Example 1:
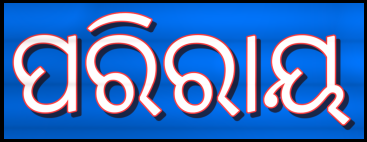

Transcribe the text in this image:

ପରିରାୟ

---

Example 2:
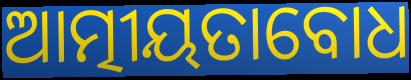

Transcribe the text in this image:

ଆତ୍ମୀୟତାବୋଧ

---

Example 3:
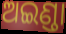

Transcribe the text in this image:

ଅଇଣ୍ଡା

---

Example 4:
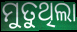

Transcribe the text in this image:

ମୁତୁଥିଲା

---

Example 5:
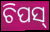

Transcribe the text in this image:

ଚିପସ୍